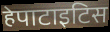
हेपाटाइटिस